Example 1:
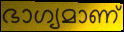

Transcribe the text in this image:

ഭാഗ്യമാണ്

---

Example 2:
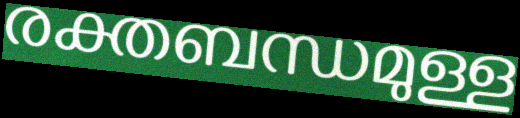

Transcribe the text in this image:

രക്തബന്ധമുള്ള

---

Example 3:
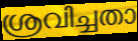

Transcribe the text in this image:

ശ്രവിച്ചതാ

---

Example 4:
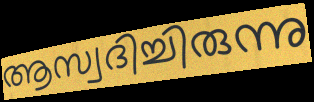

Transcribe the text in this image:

ആസ്വദിച്ചിരുന്നു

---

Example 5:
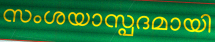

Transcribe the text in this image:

സംശയാസ്പദമായി